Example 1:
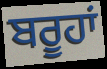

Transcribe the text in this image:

ਬਰੂਹਾਂ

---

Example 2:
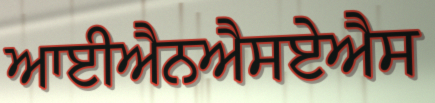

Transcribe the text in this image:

ਆਈਐਨਐਸਏਐਸ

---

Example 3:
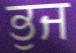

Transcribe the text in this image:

ਭੁਜ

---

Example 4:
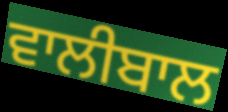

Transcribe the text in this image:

ਵਾਲੀਬਾਲ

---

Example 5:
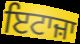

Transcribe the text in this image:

ਇਟਾਜ਼ਾ